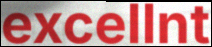
excellnt